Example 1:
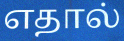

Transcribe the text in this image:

எதால்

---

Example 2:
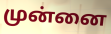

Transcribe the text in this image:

முன்னை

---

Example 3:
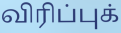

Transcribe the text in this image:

விரிப்புக்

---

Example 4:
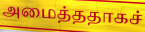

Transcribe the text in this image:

அமைத்ததாகச்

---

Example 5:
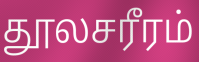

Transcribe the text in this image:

தூலசரீரம்